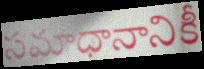
సమాధానానికీ